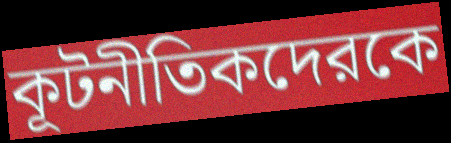
কূটনীতিকদেরকে